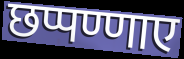
छप्पण्णाए